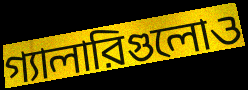
গ্যালারিগুলোও